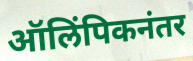
ऑलिंपिकनंतर